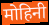
मोहिनी